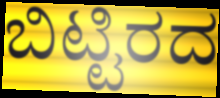
ಬಿಟ್ಟಿರದ